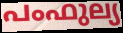
പംഫുല്യ